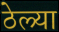
ठेल्या